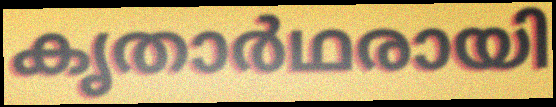
കൃതാർഥരായി